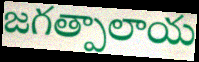
జగత్పాలాయ